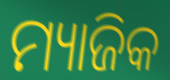
ମ୍ୟାଜିକ